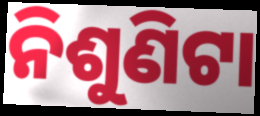
ନିଶୁଣିଟା